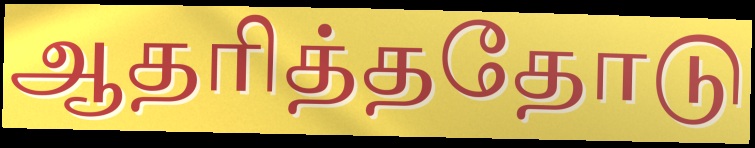
ஆதரித்ததோடு